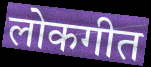
लोकगीत